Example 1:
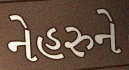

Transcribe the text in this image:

નેહરુને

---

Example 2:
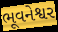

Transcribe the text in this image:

ભૂવનેશ્વર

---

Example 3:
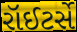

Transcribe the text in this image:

રૉઈટર્સે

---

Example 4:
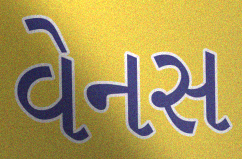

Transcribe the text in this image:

વેનસ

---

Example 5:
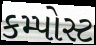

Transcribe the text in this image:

કમ્પોસ્ટ